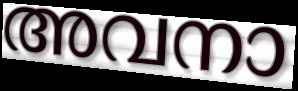
അവനാ